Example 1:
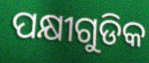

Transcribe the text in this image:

ପକ୍ଷୀଗୁଡିକ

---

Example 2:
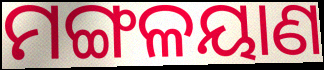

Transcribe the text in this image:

ମଙ୍ଗଳୟାଣ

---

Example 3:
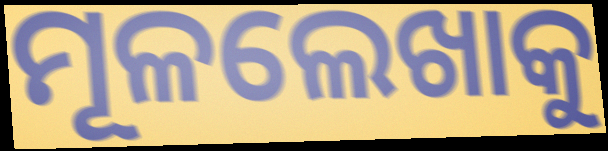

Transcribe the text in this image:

ମୂଳଲେଖାକୁ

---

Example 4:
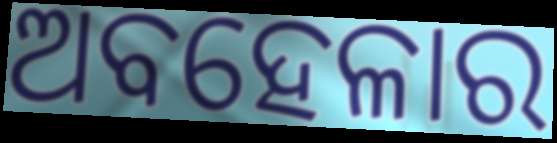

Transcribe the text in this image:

ଅବହେଳାର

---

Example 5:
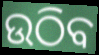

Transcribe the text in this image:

ଉଠିବ